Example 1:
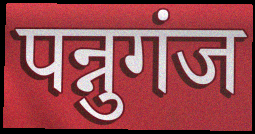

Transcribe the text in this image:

पन्नुगंज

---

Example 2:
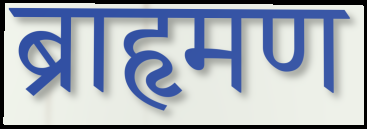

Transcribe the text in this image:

ब्राहृमण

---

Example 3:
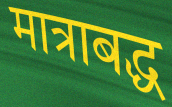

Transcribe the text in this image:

मात्राबद्ध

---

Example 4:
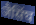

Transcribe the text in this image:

जैसिंघ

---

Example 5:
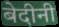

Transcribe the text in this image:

बेदीनी